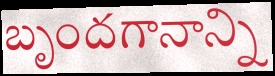
బృందగానాన్ని